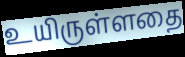
உயிருள்ளதை